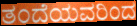
ತಂದೆಯವರಿಂದ